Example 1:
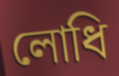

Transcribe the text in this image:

লোধি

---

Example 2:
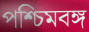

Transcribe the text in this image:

পশ্চিমবঙ্গ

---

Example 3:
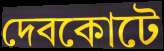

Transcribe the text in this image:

দেবকোটে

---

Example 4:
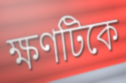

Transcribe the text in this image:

ক্ষণটিকে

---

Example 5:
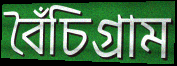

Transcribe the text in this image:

বৈঁচিগ্রাম